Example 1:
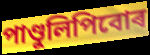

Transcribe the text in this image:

পাণ্ডুলিপিবোৰ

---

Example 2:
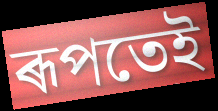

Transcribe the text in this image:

ৰূপতেই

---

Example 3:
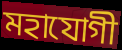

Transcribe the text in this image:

মহাযোগী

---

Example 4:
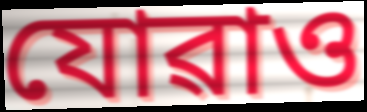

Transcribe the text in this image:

যোৱাও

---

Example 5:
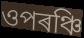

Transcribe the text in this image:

ওপৰঞ্চি